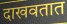
दाखवतात